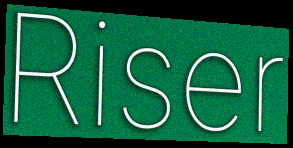
Riser